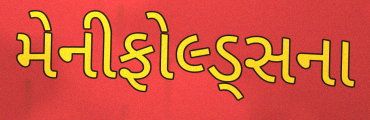
મેનીફોલ્ડ્સના